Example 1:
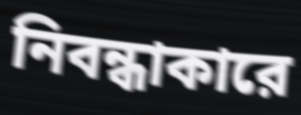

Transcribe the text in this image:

নিবন্ধাকারে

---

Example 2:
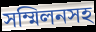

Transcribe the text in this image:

সম্মিলনসহ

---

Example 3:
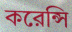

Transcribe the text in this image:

করেন্সি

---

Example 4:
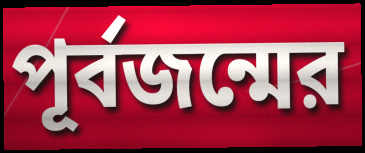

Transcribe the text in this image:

পূর্বজন্মের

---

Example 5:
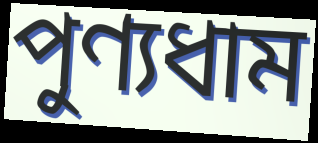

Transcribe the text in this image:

পুণ্যধাম